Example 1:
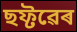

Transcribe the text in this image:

ছফ্টৱেৰ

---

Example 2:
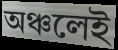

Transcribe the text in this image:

অঞ্চলেই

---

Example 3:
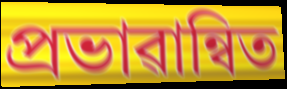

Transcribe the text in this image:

প্ৰভাৱান্বিত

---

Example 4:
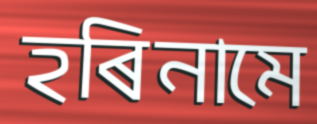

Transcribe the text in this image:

হৰিনামে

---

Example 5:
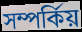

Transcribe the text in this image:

সম্পৰ্কিয়